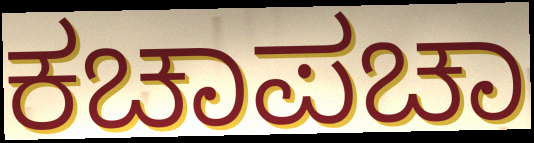
ಕಚಾಪಚಾ